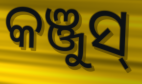
କଞ୍ଜୁସ୍